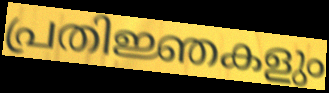
പ്രതിജ്ഞകളും